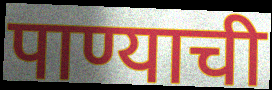
पाण्याची